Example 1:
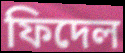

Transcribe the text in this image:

ফিদেল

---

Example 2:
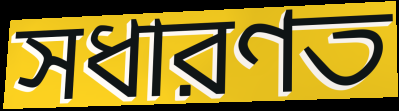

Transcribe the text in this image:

সধারণত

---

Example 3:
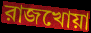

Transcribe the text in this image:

রাজখোয়া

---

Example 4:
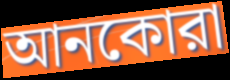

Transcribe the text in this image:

আনকোরা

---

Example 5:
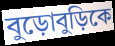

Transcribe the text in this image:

বুড়োবুড়িকে